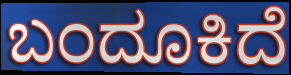
ಬಂದೂಕಿದೆ